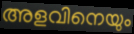
അളവിനെയും